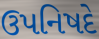
ઉપનિષદે